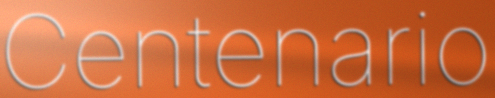
Centenario